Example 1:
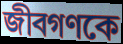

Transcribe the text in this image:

জীবগণকে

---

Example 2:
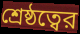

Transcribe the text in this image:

শ্রেষ্ঠত্বের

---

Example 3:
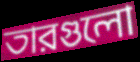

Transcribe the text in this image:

তারগুলো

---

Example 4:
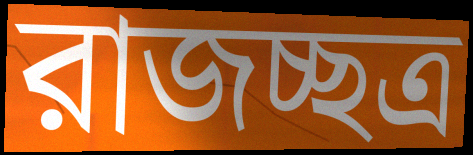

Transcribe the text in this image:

রাজচ্ছত্র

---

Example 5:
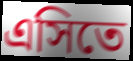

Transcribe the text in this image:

এসিতে